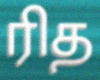
ரித